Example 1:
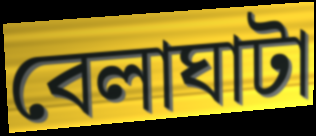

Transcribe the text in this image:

বেলাঘাটা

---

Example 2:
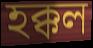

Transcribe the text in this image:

হক্কল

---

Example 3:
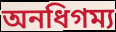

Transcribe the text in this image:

অনধিগম্য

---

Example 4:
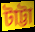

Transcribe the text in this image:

টাট্টা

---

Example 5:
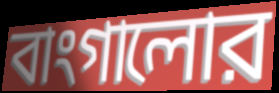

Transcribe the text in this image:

বাংগালোর